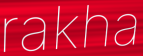
rakha